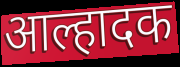
आल्हादक